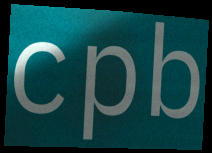
cpb